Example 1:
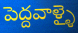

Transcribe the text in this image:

పెద్దవాళ్ళై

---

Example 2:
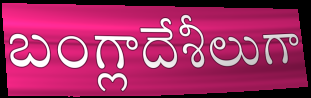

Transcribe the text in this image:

బంగ్లాదేశీలుగా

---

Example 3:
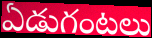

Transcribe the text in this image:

ఏడుగంటలు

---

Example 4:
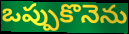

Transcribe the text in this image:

ఒప్పుకొనెను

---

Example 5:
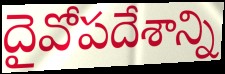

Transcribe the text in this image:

దైవోపదేశాన్ని